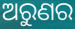
ଅରୁଣର